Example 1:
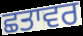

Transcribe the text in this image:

ਛਤਾਵਰ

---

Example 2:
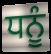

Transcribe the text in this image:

ਧਨੂੰ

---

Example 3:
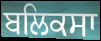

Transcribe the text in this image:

ਬਲਿਕਸਾ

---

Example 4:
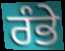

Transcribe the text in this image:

ਰੰਭੇ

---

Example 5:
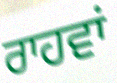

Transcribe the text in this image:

ਰਾਹਵਾਂ